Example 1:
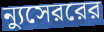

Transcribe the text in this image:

ন্যুসেররের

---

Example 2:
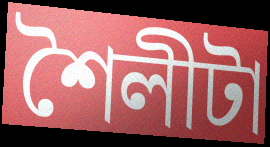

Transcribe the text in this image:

শৈলীটা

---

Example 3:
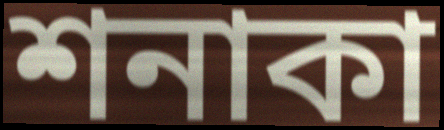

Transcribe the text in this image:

শনাকা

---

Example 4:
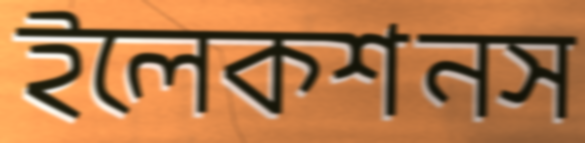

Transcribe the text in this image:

ইলেকশনস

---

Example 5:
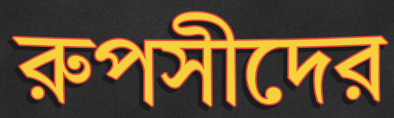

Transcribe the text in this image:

রুপসীদের